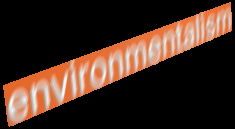
environmentalism